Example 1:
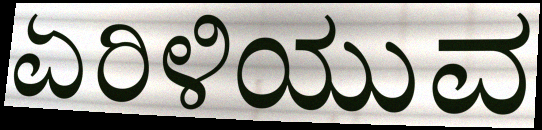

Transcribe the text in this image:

ಏರಿಳಿಯುವ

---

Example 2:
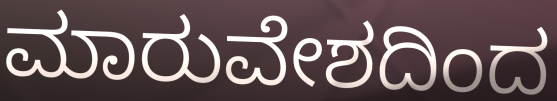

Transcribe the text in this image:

ಮಾರುವೇಶದಿಂದ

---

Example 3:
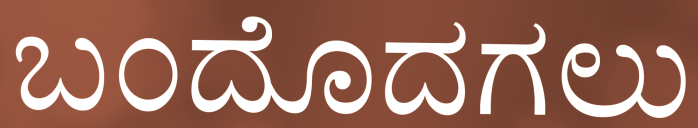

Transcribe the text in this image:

ಬಂದೊದಗಲು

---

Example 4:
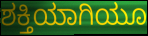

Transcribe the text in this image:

ಶಕ್ತಿಯಾಗಿಯೂ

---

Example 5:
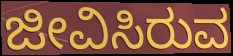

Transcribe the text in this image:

ಜೀವಿಸಿರುವ